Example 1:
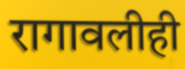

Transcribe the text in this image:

रागावलीही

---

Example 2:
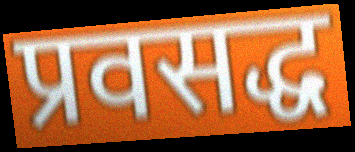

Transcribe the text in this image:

प्रवसद्ध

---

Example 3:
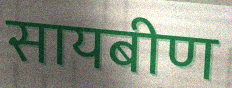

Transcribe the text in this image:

सायबीण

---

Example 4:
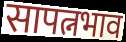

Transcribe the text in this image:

सापत्नभाव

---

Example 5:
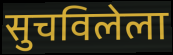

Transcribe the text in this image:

सुचविलेला